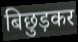
बिछुड़कर